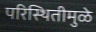
परिस्थितीमुळे